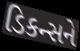
ડિકન્સને